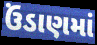
ઉંડાણમાં